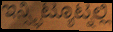
ಇನ್ಸ್ಟಿಟ್ಯೂಟ್ನಲ್ಲಿ